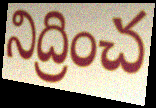
నిద్రించ